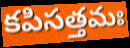
కపిసత్తమః